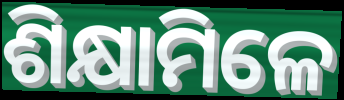
ଶିକ୍ଷାମିଳେ